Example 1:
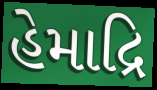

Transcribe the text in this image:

હેમાદ્રિ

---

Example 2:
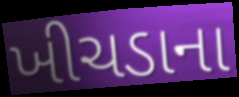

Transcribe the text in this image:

ખીચડાના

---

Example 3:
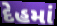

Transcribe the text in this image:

દેહમાં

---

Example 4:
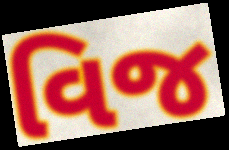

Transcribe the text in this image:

વિજ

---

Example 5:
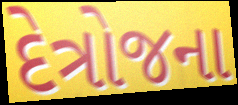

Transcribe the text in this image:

દેત્રોજના